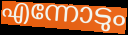
എന്നോടും